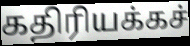
கதிரியக்கச்